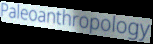
Paleoanthropology